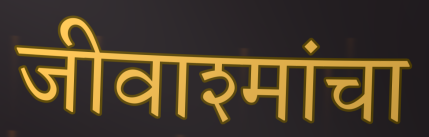
जीवाश्मांचा